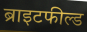
ब्राइटफील्ड